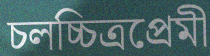
চলচ্চিত্রপ্রেমী